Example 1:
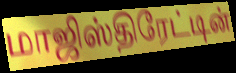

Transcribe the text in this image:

மாஜிஸ்திரேட்டின்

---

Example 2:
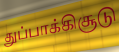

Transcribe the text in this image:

துப்பாக்கிசூடு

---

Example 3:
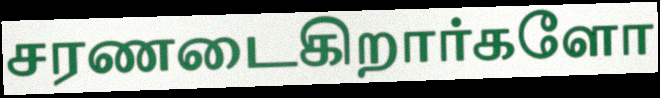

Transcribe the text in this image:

சரணடைகிறார்களோ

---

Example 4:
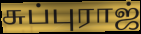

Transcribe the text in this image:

சுப்புராஜ்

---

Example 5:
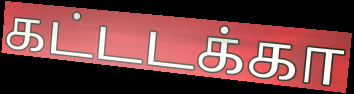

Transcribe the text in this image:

கட்டடக்கா